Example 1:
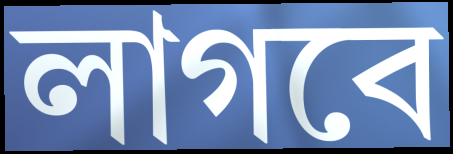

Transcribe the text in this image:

লাগবে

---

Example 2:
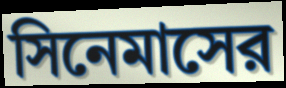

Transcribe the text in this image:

সিনেমাসের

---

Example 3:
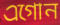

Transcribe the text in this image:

এগোন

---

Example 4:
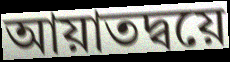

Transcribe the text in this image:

আয়াতদ্বয়ে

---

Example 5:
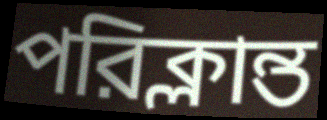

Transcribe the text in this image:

পরিক্লান্ত